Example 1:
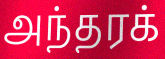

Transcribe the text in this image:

அந்தரக்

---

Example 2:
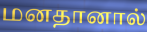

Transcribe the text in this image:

மனதானால்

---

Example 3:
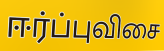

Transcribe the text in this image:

ஈர்ப்புவிசை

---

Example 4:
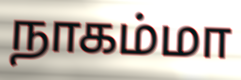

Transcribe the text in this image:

நாகம்மா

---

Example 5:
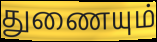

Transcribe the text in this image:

துணையும்